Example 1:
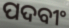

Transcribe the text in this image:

ପଦବୀଂ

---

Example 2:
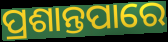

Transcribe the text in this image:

ପ୍ରଶାନ୍ତପାରେ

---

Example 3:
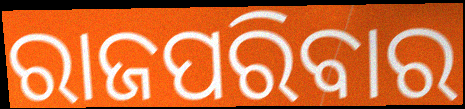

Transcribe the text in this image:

ରାଜପରିବାର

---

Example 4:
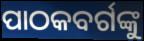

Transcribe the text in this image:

ପାଠକବର୍ଗଙ୍କୁ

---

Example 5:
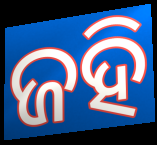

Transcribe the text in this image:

ଜହି